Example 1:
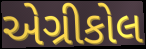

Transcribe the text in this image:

એગ્રીકોલ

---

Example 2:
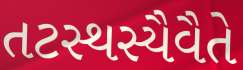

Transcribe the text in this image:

તટસ્થસ્યૈવૈતે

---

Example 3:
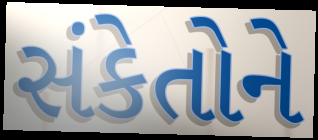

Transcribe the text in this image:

સંકેતોને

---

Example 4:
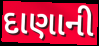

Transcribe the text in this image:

દાણાની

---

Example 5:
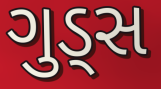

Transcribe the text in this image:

ગુડ્સ